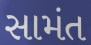
સામંત